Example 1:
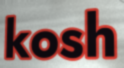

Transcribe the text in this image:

kosh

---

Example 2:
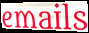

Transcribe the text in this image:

emails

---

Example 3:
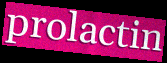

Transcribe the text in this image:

prolactin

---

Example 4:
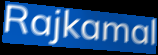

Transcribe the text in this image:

Rajkamal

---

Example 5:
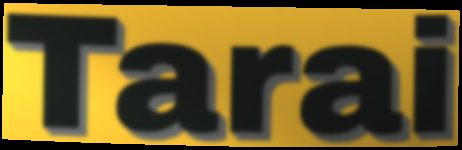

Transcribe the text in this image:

Tarai